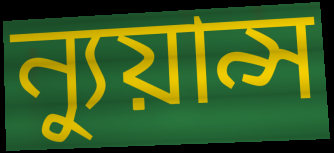
ন্যুয়ান্স